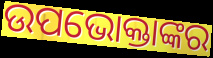
ଉପଭୋକ୍ତାଙ୍କର